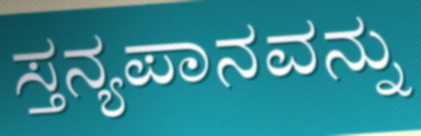
ಸ್ತನ್ಯಪಾನವನ್ನು